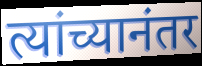
त्यांच्यानंतर